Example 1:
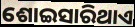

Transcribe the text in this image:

ଶୋଇସାରିଥାଏ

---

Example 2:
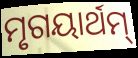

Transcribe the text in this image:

ମୃଗୟାର୍ଥମ୍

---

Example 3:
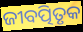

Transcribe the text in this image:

ଜୀବତ୍ପିତୃକ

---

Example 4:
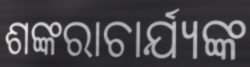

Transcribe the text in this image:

ଶଙ୍କରାଚାର୍ଯ୍ୟଙ୍କ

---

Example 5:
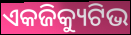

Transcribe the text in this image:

ଏକଜିକ୍ୟୁଟିଭ